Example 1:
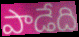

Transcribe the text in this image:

పాడేది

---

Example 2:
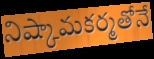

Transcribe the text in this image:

నిష్కామకర్మతోనే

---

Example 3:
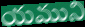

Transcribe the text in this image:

యముని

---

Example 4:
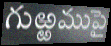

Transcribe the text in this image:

గుఱ్ఱముపై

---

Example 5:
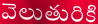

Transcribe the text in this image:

వెలుతురికి